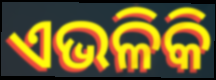
ଏଭଳିକି